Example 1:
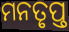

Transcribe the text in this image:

ମନତୃପ୍ତ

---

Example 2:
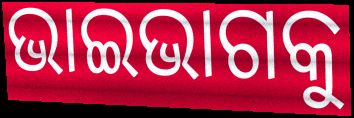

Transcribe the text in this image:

ଭାଇଭାଗକୁ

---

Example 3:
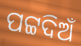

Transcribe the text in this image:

ପଟ୍ଟଦିଅଁ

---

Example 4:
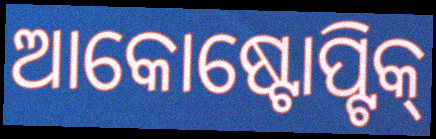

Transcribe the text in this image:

ଆକୋଷ୍ଟୋପ୍ଟିକ୍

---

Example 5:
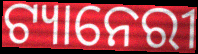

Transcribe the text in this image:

ଟ୍ୟାନେରୀ